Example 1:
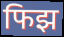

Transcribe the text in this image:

फिझ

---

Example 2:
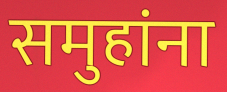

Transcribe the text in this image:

समुहांना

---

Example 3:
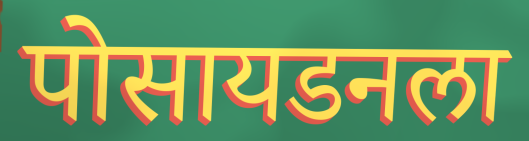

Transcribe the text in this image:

पोसायडनला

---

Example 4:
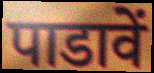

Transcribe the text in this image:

पाडावें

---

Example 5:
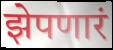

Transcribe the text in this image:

झेपणारं